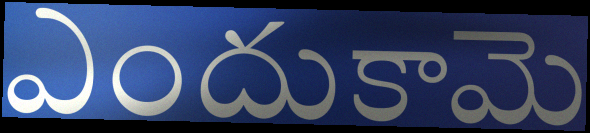
ఎందుకామె